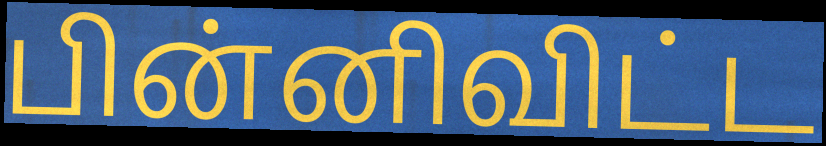
பின்னிவிட்ட